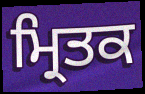
ਮ੍ਰਿਤਕ